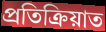
প্ৰতিক্ৰিয়াত